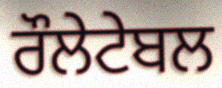
ਰੌਲੇਟੇਬਲ